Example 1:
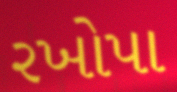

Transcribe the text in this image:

રખોપા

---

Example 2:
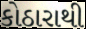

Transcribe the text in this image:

કોઠારાથી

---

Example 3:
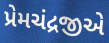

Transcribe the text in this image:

પ્રેમચંદ્રજીએ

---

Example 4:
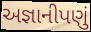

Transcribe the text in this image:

અજ્ઞાનીપણું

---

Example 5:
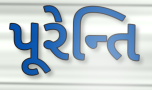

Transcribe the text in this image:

પૂરેન્તિ